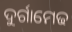
ଦୁର୍ଗାମେଢ